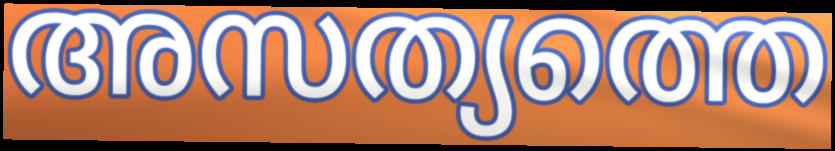
അസത്യത്തെ